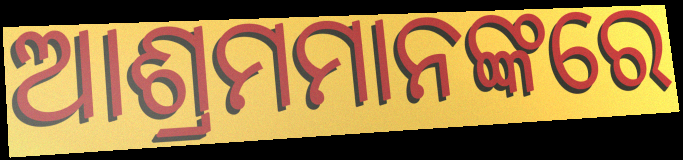
ଆଶ୍ରମମାନଙ୍କରେ